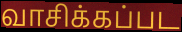
வாசிக்கப்பட